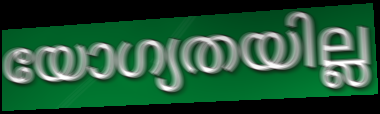
യോഗ്യതയില്ല